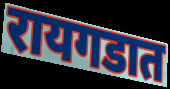
रायगडात